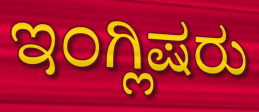
ಇಂಗ್ಲಿಷರು